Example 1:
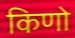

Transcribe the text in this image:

किणो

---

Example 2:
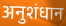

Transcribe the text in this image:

अनुशंधान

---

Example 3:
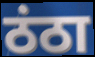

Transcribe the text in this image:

ठंठा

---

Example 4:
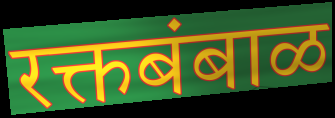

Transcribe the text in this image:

रक्तबंबाळ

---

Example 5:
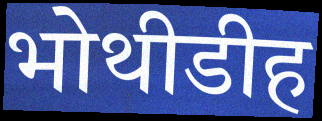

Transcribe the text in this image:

भोथीडीह